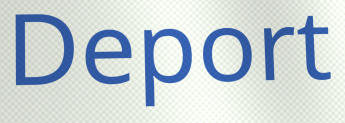
Deport